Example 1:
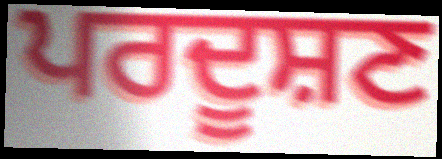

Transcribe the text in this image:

ਪਰਦੂਸ਼ਣ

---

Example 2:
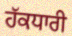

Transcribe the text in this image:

ਹੱਕਧਾਰੀ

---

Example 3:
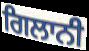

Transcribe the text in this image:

ਗਿਲਾਨੀ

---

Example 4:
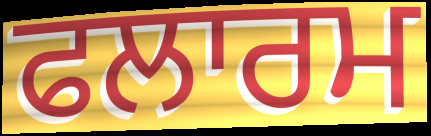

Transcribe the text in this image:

ਫਲਾਰਮ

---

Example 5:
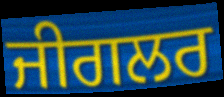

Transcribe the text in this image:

ਜੀਗਲਰ